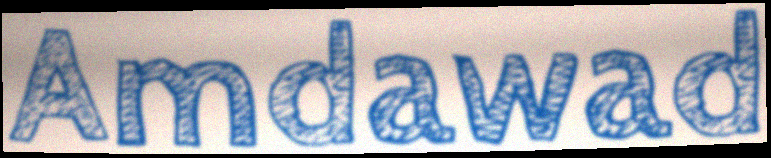
Amdawad